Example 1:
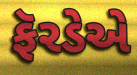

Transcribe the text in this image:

ફૅરડેએ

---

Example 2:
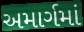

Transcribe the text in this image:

અમાર્ગમાં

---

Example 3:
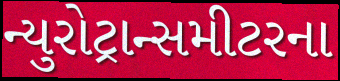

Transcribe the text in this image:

ન્યુરોટ્રાન્સમીટરના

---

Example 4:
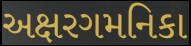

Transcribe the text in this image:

અક્ષરગમનિકા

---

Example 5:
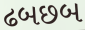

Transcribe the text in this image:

ઢબછબ